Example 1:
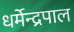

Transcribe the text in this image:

धर्मेन्द्रपाल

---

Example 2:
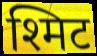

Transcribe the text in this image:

श्मिट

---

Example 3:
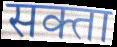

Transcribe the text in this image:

सक्‍ता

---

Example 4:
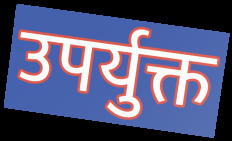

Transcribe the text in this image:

उपर्युक्त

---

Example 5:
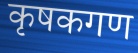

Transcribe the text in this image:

कृषकगण